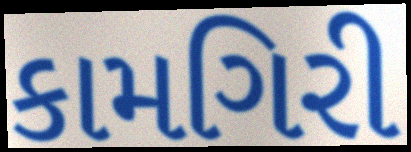
કામગિરી